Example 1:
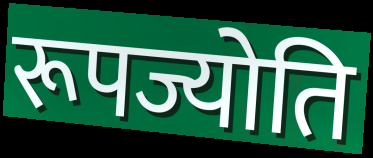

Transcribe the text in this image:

रूपज्योति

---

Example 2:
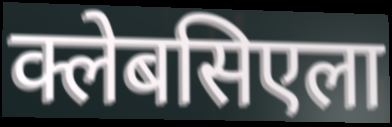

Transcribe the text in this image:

क्लेबसिएला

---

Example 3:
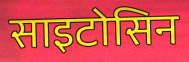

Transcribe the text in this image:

साइटोसिन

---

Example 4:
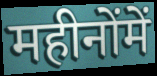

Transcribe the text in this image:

महीनोंमें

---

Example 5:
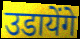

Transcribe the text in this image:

उडायेंगे